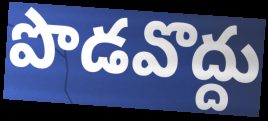
పొడవొద్దు